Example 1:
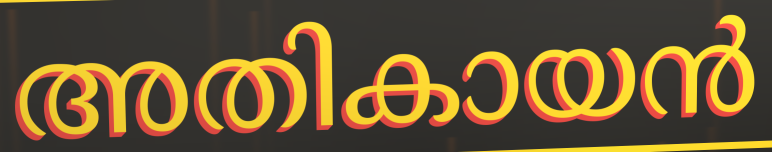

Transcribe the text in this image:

അതികായൻ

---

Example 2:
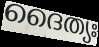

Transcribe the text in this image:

ദൈത്യഃ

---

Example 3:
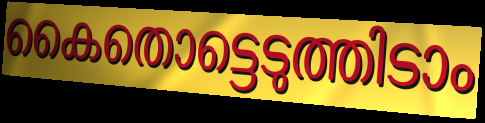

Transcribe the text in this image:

കൈതൊട്ടെടുത്തിടാം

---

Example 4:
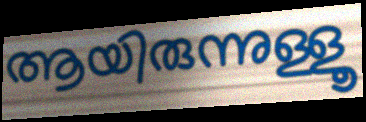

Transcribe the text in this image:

ആയിരുന്നുള്ളൂ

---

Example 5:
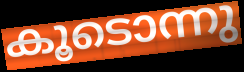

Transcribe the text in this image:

കൂടൊന്നു